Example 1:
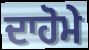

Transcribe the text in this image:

ਦਾਹੋਮੇ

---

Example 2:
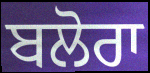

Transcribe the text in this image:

ਬਲੋਰਾ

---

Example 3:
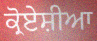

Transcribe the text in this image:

ਕ੍ਰੋਏਸ਼ੀਆ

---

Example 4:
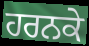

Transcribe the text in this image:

ਹਰਨਕੇ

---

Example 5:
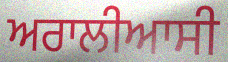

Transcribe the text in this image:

ਅਰਾਲੀਆਸੀ